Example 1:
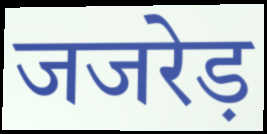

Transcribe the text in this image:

जजरेड़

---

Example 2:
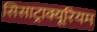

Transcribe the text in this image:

सिसाट्राक्यूरियम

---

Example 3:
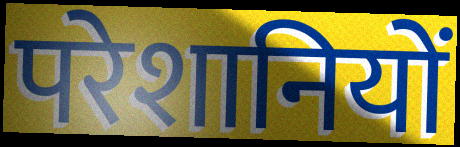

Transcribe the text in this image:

परेशानियों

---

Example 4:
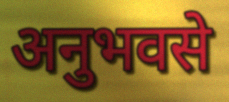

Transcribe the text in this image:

अनुभवसे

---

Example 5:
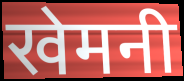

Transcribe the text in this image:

खेमनी